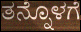
ತನ್ನೊಳಗೆ